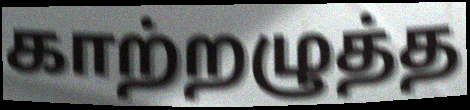
காற்றழுத்த